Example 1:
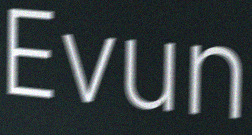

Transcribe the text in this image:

Evun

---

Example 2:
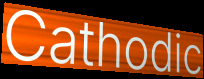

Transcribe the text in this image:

Cathodic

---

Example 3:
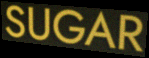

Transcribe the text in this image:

SUGAR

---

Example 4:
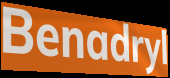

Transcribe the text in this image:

Benadryl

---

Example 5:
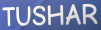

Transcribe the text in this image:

TUSHAR